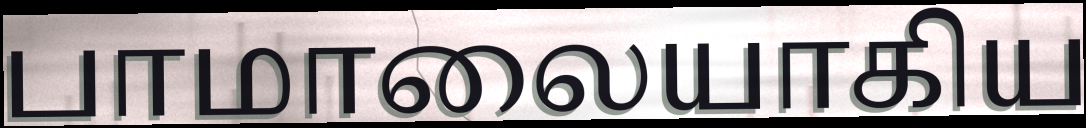
பாமாலையாகிய